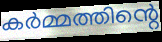
കർമ്മത്തിന്റെ